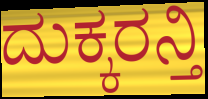
ದುಕ್ಕರನ್ತಿ